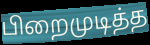
பிறைமுடித்த